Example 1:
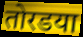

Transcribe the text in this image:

तोरडया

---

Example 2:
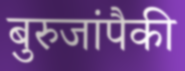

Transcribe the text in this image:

बुरुजांपैकी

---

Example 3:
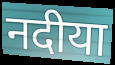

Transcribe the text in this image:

नदीया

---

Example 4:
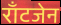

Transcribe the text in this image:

राँटजेन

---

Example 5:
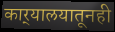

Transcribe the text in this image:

कार्यालयातूनही